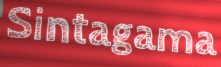
Sintagama